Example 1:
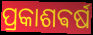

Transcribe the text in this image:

ପ୍ରକାଶଵର୍ଷ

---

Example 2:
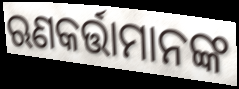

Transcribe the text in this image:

ଋଣକର୍ତ୍ତାମାନଙ୍କ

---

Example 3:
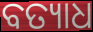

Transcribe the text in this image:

ବତ୍ୟାଧ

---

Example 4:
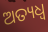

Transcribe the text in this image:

ଅତ୍ୟଧ୍ୱ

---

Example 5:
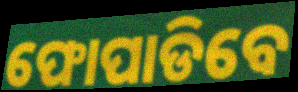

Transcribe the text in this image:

ଫୋପାଡିବେ